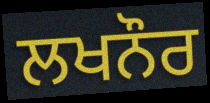
ਲਖਨੌਰ